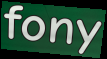
fony